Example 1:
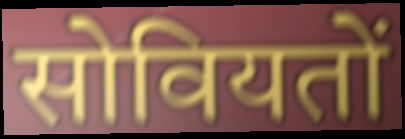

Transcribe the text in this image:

सोवियतों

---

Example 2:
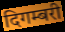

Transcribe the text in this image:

दिगम्बरी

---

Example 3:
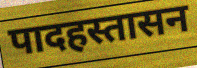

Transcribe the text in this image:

पादहस्तासन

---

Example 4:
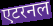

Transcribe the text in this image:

एटरनल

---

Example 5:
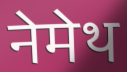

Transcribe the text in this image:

नेमेथ